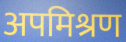
अपमिश्रण